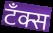
टँक्स